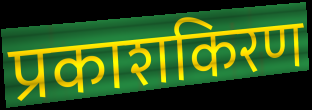
प्रकाशकिरण